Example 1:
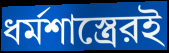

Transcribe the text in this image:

ধর্মশাস্ত্রেরই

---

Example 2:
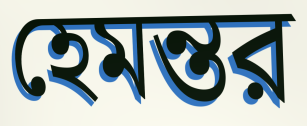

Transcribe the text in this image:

হেমন্তর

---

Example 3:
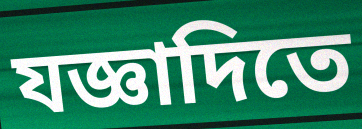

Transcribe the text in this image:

যজ্ঞাদিতে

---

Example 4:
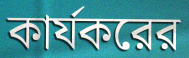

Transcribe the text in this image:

কার্যকরের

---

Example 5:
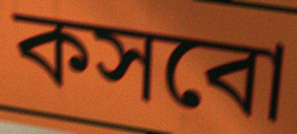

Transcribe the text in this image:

কসবো